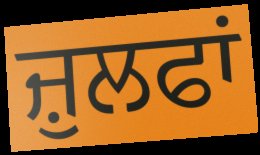
ਜ਼ੁਲਫਾਂ